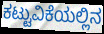
ಕಟ್ಟುವಿಕೆಯಲ್ಲಿನ